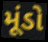
મૂંડો